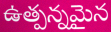
ఉత్పన్నమైన